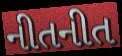
નીતનીત